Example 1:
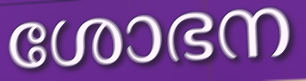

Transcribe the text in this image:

ശോഭന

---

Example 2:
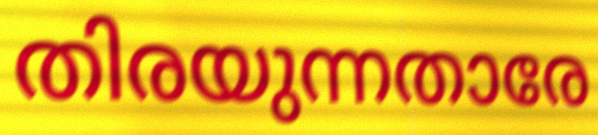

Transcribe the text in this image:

തിരയുന്നതാരേ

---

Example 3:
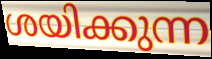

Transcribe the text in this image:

ശയിക്കുന്ന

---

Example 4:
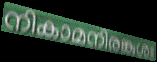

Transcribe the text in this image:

നികാമനിരങ്കുശഃ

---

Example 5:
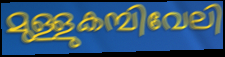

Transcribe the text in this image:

മുള്ളുകമ്പിവേലി